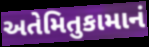
અતેમિતુકામાનં